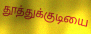
தூத்துக்குடியை